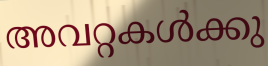
അവറ്റകൾക്കു